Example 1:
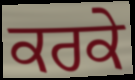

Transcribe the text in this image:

ਕਰਕੇ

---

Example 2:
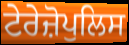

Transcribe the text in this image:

ਟੇਰੇਜ਼ੋਪੁਲਿਸ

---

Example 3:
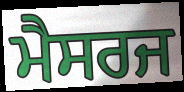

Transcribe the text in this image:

ਮੈਸਰਜ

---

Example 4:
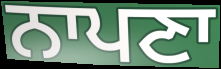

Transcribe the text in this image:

ਨਾਪਣਾ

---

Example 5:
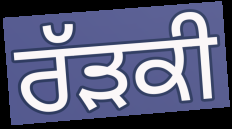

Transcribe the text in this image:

ਰੱੜਕੀ